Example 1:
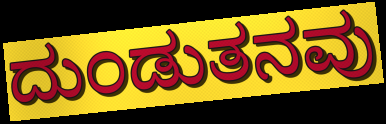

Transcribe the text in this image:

ದುಂಡುತನವು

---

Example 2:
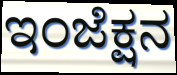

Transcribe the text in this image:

ಇಂಜೆಕ್ಷನ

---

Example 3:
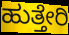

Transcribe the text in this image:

ಹುತ್ತೇರಿ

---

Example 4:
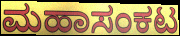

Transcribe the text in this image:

ಮಹಾಸಂಕಟ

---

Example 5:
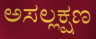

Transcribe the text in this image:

ಅಸಲ್ಲಕ್ಷಣ